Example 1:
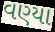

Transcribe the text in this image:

વણ્યા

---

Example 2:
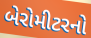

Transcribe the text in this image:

બેરોમીટરનો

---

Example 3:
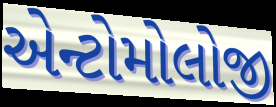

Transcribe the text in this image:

એન્ટોમોલોજી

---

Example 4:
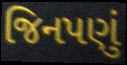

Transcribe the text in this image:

જિનપણું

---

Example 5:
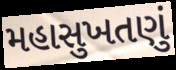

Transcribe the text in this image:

મહાસુખતણું